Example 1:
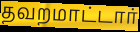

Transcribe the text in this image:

தவறமாட்டார்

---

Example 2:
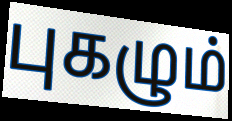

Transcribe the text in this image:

புகழும்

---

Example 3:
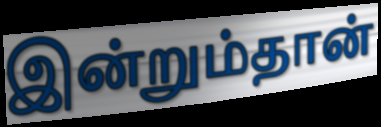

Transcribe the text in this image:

இன்றும்தான்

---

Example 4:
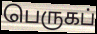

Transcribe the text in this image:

பெருகப்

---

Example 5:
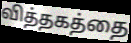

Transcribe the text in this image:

வித்தகத்தை